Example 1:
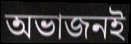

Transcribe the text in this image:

অভাজনই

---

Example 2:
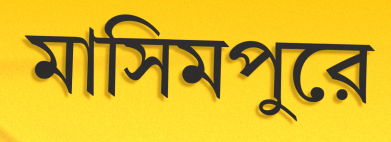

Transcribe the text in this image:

মাসিমপুরে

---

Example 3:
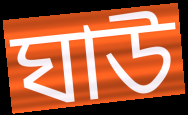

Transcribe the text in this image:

ঘাউ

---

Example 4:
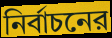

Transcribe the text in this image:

নির্বাচনের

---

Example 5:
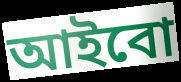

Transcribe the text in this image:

আইবো